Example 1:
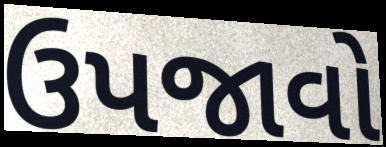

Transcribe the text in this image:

ઉપજાવો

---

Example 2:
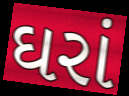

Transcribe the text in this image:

ઘરાં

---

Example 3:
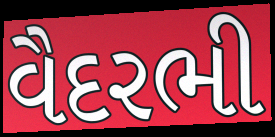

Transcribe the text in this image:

વૈદરભી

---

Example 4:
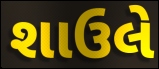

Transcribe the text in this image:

શાઉલે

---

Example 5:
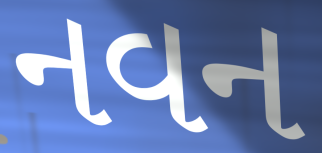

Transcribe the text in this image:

નવન